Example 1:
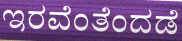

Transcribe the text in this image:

ಇರವೆಂತೆಂದಡೆ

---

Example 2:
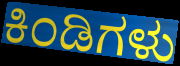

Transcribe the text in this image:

ಕಿಂಡಿಗಳು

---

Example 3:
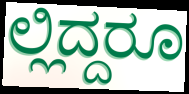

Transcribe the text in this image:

ಲ್ಲಿದ್ದರೂ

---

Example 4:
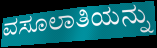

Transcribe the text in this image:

ವಸೂಲಾತಿಯನ್ನು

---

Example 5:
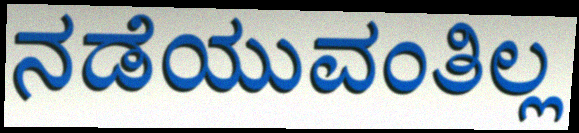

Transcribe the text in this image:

ನಡೆಯುವಂತಿಲ್ಲ